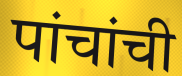
पांचांची